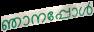
ഞാനപ്പോൾ